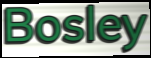
Bosley